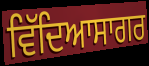
ਵਿੱਦਿਆਸਾਗਰ